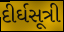
દીર્ઘસૂત્રી